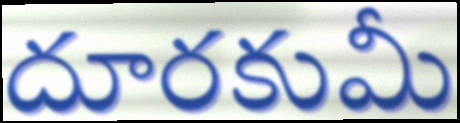
దూరకుమీ